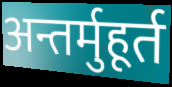
अन्तर्मुहूर्त